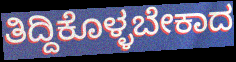
ತಿದ್ದಿಕೊಳ್ಳಬೇಕಾದ